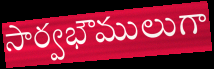
సార్వభౌములుగా